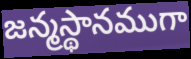
జన్మస్థానముగా